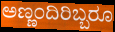
ಅಣ್ಣಂದಿರಿಬ್ಬರೂ